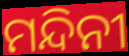
ମନ୍ଦିନୀ